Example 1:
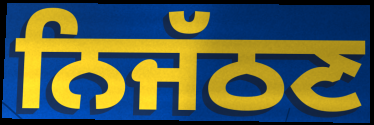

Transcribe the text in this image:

ਨਿਜੱਠਣ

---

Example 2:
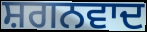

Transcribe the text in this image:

ਸ਼ਗਨਵਾਦ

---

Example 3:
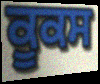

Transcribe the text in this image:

ਕੂਕਸ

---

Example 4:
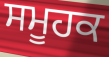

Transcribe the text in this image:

ਸਮੂਹਕ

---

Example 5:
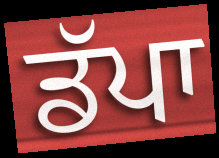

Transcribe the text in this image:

ਡੱਪਾ